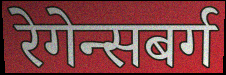
रेगेन्सबर्ग